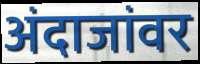
अंदाजांवर